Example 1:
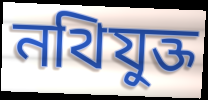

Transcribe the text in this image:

নথিযুক্ত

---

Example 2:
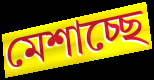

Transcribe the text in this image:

মেশাচ্ছে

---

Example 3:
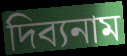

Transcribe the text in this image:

দিব্যনাম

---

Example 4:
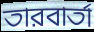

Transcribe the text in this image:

তারবার্তা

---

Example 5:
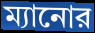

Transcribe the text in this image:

ম্যানোর